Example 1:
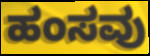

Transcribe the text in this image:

ಹಂಸವು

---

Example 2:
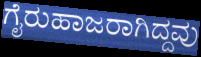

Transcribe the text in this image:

ಗೈರುಹಾಜರಾಗಿದ್ದವು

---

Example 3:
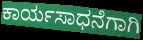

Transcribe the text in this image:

ಕಾರ್ಯಸಾಧನೆಗಾಗಿ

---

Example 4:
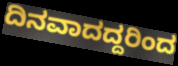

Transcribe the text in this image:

ದಿನವಾದದ್ದರಿಂದ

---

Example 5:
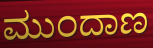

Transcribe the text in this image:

ಮುಂದಾಣ